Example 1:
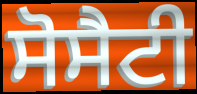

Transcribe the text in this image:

ਸੋਸੈਟੀ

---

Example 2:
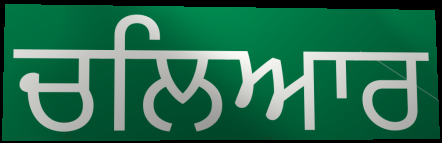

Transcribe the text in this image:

ਚਲਿਆਰ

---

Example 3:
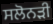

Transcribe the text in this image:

ਸਲੋਨੜੀ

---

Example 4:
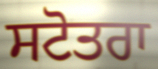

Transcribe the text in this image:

ਸਟੋਤਰਾ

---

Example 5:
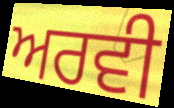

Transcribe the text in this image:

ਅਰਵੀ